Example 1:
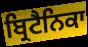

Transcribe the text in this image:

ਬ੍ਰਿਟੈਨਿਕਾ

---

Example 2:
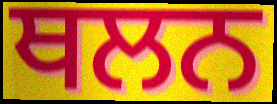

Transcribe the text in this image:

ਥਲਨ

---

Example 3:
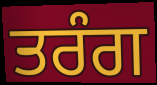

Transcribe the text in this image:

ਤਰੰਗ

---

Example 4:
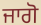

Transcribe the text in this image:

ਜਾਗੋ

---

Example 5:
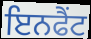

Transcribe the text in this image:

ਇਨਫੈਂਟ